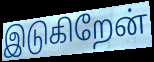
இடுகிறேன்